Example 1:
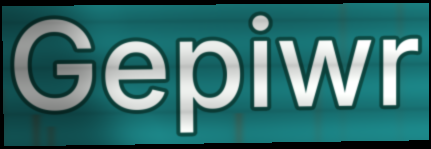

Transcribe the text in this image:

Gepiwr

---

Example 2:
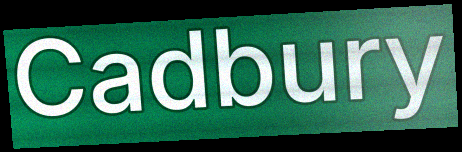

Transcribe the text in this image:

Cadbury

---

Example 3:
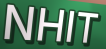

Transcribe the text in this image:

NHIT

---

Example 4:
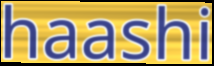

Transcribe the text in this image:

haashi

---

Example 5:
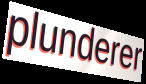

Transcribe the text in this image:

plunderer